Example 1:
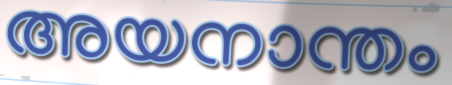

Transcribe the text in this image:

അയനാന്തം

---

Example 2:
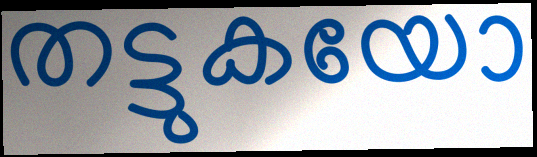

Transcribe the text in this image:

തട്ടുകയോ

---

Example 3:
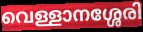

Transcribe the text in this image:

വെള്ളാനശ്ശേരി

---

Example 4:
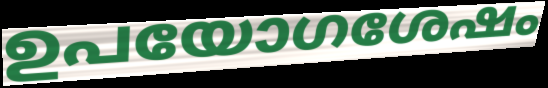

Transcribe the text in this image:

ഉപയോഗശേഷം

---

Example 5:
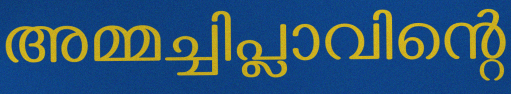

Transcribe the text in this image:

അമ്മച്ചിപ്ലാവിന്റെ